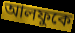
আলফুকে